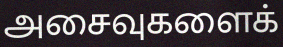
அசைவுகளைக்